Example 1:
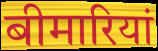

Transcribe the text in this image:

बीमारियां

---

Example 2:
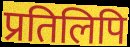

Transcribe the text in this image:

प्रतिलिपि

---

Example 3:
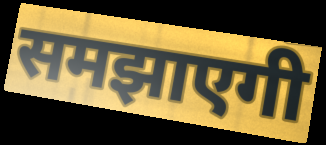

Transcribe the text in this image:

समझाएगी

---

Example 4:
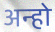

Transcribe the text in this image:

अन्हो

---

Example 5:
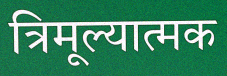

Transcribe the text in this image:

त्रिमूल्यात्मक